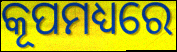
କୂପମଧ୍ୟରେ